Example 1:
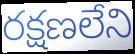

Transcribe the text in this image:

రక్షణలేని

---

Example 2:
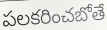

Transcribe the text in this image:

పలకరించబోతే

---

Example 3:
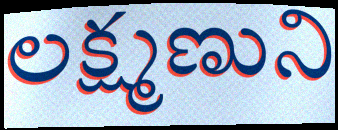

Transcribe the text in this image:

లక్ష్మణుని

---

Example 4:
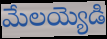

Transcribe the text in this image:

మేలయ్యెడి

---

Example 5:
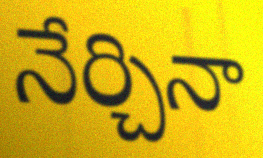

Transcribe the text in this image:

నేర్చినా